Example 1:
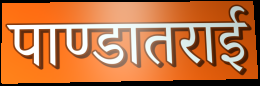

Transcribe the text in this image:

पाण्डातराई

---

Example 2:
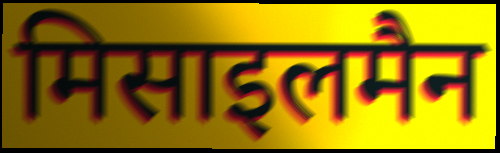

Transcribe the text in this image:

मिसाइलमैन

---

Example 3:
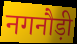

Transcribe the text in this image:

नगनौड़ी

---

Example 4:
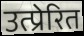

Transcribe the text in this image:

उत्‍प्रेरित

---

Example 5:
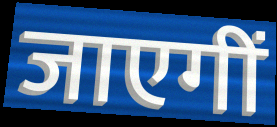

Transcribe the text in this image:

जाएगीं